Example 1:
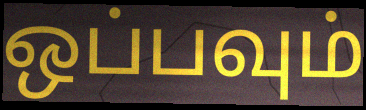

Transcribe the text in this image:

ஒப்பவும்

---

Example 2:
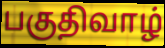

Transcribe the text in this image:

பகுதிவாழ்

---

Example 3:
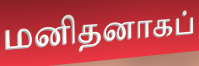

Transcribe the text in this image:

மனிதனாகப்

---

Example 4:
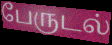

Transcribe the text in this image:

பேருடல்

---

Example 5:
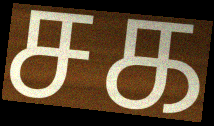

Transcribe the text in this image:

சக